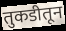
तुकडीतून